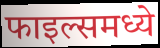
फाइल्समध्ये